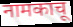
नामकाचू